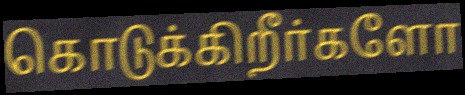
கொடுக்கிறீர்களோ